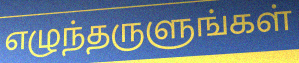
எழுந்தருளுங்கள்